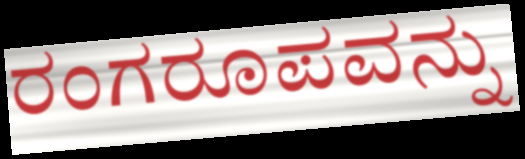
ರಂಗರೂಪವನ್ನು